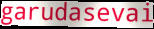
garudasevai